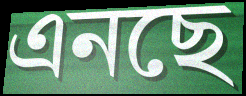
এনছে